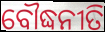
ବୌଦ୍ଧନୀତି